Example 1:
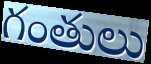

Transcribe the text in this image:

గంతులు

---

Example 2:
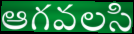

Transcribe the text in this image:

ఆగవలసి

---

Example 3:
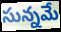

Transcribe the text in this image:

సున్నమే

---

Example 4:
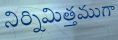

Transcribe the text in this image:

నిర్నిమిత్తముగా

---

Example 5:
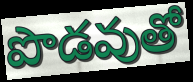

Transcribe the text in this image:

పొడవుతో